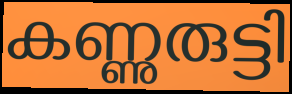
കണ്ണുരുട്ടി